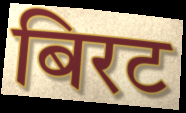
बिरट